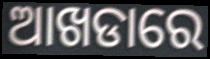
ଆଖଡାରେ